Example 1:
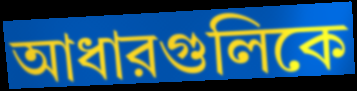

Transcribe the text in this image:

আধারগুলিকে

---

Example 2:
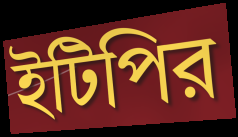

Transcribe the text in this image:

ইটিপির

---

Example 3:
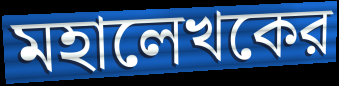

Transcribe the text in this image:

মহালেখকের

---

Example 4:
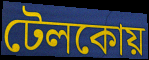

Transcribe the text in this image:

টেলকোয়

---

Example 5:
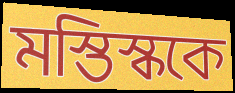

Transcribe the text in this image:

মস্তিস্ককে